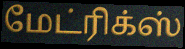
மேட்ரிக்ஸ்